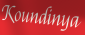
Koundinya